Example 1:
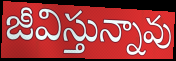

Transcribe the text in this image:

జీవిస్తున్నావు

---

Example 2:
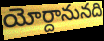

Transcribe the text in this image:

యోర్దానునది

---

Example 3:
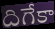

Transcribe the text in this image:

దిగేకా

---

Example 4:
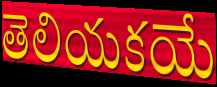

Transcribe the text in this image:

తెలియకయే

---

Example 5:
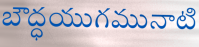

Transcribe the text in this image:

బౌద్ధయుగమునాటి